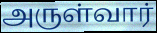
அருள்வார்